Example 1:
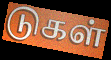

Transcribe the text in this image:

டுகள்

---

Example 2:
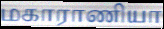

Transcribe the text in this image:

மகாராணியா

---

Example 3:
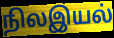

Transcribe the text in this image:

நிலஇயல்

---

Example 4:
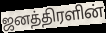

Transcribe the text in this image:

ஜனத்திரளின்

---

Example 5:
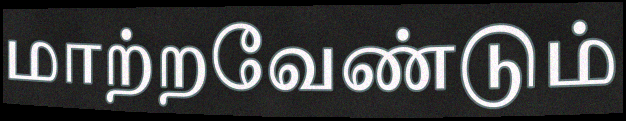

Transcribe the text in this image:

மாற்றவேண்டும்